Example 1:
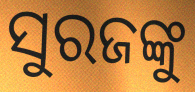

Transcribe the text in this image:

ସୁରଜଙ୍କୁ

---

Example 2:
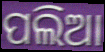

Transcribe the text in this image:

ପଲିଆ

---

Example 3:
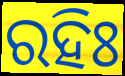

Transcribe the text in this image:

ରହିଃ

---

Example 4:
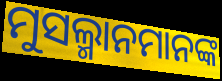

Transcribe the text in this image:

ମୁସଲ୍ମାନମାନଙ୍କ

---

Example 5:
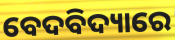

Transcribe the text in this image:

ବେଦବିଦ୍ୟାରେ